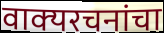
वाक्यरचनांचा